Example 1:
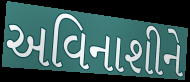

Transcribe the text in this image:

અવિનાશીને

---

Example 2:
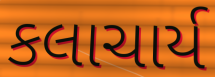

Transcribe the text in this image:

કલાચાર્ય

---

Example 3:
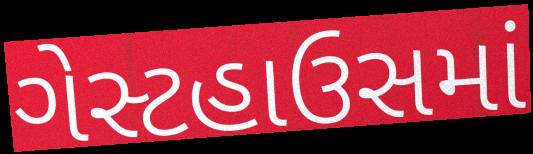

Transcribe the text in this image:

ગેસ્ટહાઉસમાં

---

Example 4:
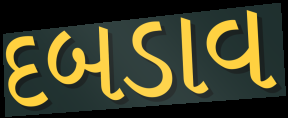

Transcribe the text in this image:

દબડાવ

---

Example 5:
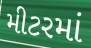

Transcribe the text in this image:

મીટરમાં